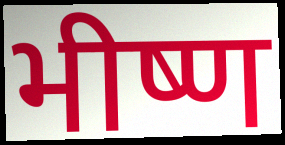
भीष्ण